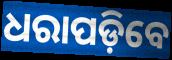
ଧରାପଡ଼ିବେ